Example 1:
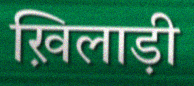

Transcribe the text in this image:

ख़िलाड़ी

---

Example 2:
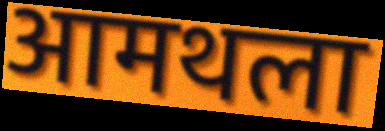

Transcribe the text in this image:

आमथला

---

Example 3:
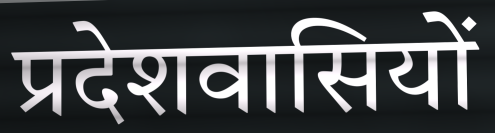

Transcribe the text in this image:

प्रदेशवासियों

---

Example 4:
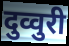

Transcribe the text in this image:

दुव्वुरी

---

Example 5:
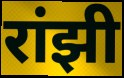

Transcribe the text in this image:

रांझी